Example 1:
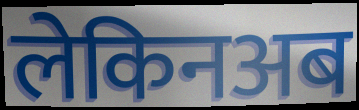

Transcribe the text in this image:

लेकिनअब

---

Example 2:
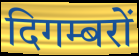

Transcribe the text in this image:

दिगम्बरों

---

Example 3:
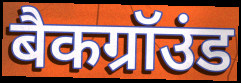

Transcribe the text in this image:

बैकग्रॉउंड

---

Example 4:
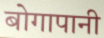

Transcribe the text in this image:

बोगापानी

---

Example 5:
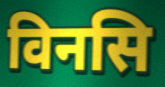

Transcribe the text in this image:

विनसि